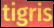
tigris